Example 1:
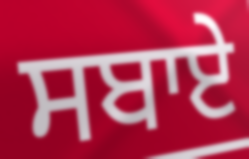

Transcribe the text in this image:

ਸਬਾਏ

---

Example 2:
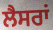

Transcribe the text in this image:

ਲੈਸਰਾਂ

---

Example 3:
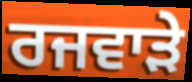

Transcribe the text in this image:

ਰਜਵਾੜੇ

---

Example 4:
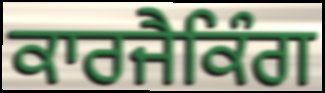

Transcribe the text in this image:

ਕਾਰਜੈਕਿੰਗ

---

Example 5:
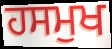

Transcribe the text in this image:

ਹਸਮੁਖ